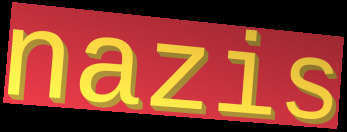
nazis